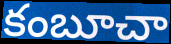
కంబూచా